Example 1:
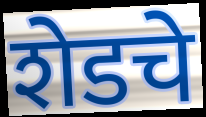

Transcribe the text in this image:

शेडचे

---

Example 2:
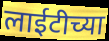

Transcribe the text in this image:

लाईटीच्या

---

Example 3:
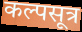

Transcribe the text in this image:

कल्पसूत्र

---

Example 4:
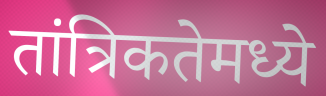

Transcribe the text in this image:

तांत्रिकतेमध्ये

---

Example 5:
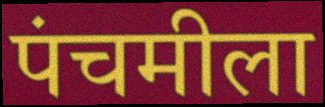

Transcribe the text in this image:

पंचमीला